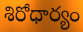
శిరోధార్యం